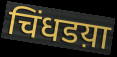
चिंधडय़ा